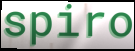
spiro